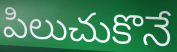
పిలుచుకొనే